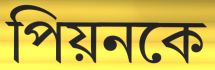
পিয়নকে